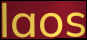
laos